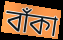
বাঁকা